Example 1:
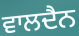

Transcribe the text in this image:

ਵਾਲਦੈਨ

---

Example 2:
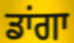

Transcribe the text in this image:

ਡਾਂਗਾ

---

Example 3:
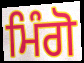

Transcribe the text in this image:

ਮਿੰਗੋ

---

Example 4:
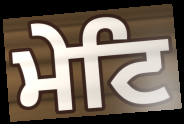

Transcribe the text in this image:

ਮੇਟਿ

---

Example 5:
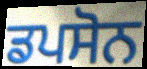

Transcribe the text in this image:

ਡਪਸੋਨ